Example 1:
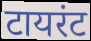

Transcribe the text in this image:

टायरंट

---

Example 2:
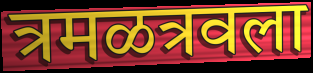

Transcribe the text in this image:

त्रमळत्रवला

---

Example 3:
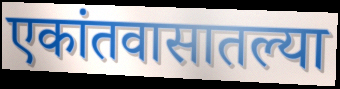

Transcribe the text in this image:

एकांतवासातल्या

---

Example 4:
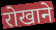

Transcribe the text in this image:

रोखाने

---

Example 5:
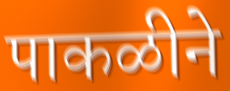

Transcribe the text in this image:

पाकळीने